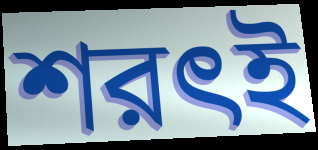
শরৎই